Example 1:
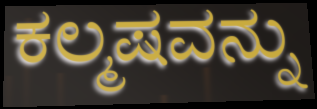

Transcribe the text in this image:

ಕಲ್ಮಷವನ್ನು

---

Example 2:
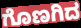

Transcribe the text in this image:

ಗೊಣಗಿದ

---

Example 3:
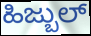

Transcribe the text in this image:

ಹಿಜ್ಬುಲ್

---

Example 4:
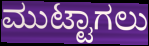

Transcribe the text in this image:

ಮುಟ್ಟಾಗಲು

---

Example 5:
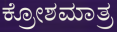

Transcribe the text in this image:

ಕ್ರೋಶಮಾತ್ರ